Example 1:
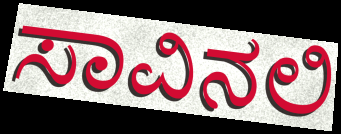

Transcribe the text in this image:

ಸಾವಿನಲಿ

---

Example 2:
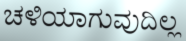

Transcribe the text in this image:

ಚಳಿಯಾಗುವುದಿಲ್ಲ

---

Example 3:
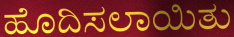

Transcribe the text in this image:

ಹೊದಿಸಲಾಯಿತು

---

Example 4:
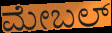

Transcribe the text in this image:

ಮೇಬಲ್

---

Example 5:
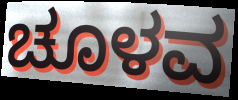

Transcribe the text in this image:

ಚೂಳವ